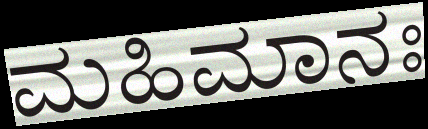
ಮಹಿಮಾನಃ